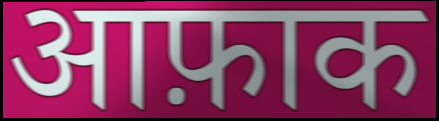
आफ़ाक